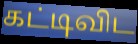
கட்டிவிட